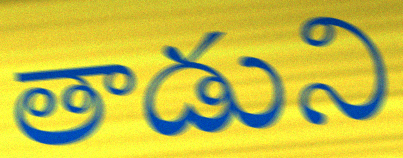
తాడుని